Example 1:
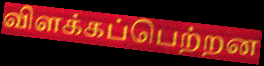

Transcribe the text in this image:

விளக்கப்பெற்றன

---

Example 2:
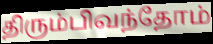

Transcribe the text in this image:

திரும்பிவந்தோம்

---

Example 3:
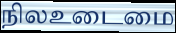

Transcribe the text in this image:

நிலஉடைமை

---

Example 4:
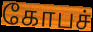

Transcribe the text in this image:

கோபச்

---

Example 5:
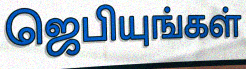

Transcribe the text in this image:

ஜெபியுங்கள்